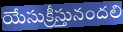
యేసుక్రీస్తునందలి